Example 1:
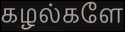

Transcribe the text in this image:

கழல்களே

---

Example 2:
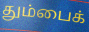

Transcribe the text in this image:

தும்பைக்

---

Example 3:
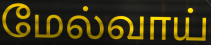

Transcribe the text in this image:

மேல்வாய்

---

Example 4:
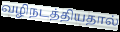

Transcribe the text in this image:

வழிநடத்தியதால்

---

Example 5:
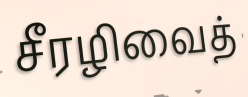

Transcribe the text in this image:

சீரழிவைத்